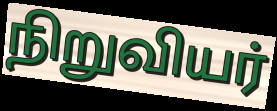
நிறுவியர்